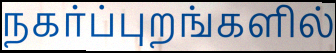
நகர்ப்புறங்களில்